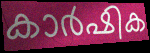
കാർഷിക